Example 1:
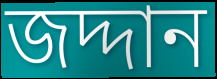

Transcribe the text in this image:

জদ্দান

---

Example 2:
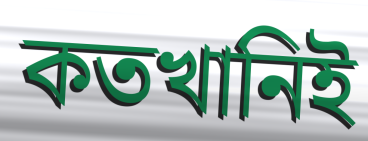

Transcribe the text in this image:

কতখানিই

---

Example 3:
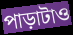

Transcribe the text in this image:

পাড়াটাও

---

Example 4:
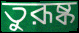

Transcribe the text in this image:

তুরূষ্ক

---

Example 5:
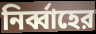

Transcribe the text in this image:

নির্ব্বাহের